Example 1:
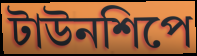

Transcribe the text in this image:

টাউনশিপে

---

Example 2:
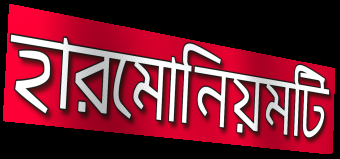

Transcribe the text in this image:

হারমোনিয়মটি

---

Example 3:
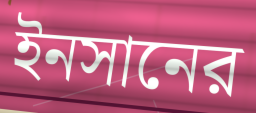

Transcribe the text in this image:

ইনসানের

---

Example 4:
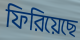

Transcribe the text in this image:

ফিরিয়েছে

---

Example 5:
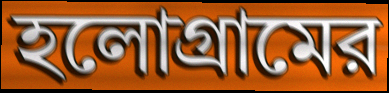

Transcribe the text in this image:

হলোগ্রামের